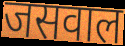
जसवाल